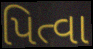
પિત્વા